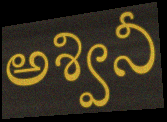
అశ్వినీ